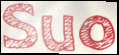
Suo